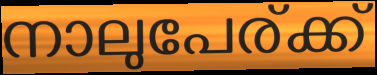
നാലുപേര്ക്ക്